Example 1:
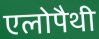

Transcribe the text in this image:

एलोपैथी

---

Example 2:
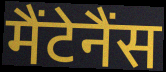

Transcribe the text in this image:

मैंटेनैंस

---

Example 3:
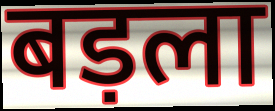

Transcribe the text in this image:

बड़ला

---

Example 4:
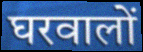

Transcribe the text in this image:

घरवालों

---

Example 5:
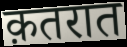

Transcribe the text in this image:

क़तरात